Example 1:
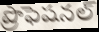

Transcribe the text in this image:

ప్రొఫెషనల్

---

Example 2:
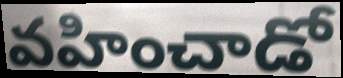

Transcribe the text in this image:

వహించాడో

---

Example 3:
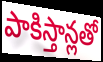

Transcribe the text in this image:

పాకిస్తాన్లతో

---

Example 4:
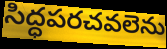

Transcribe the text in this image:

సిద్ధపరచవలెను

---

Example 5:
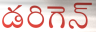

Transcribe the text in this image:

డరిగెన్